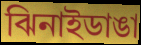
ঝিনাইডাঙা